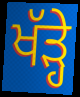
ਖੱੜ੍ਹੇ